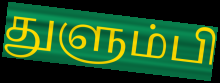
துளும்பி